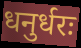
धनुर्धरः